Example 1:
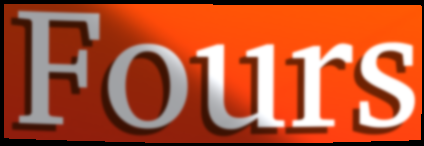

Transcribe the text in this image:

Fours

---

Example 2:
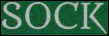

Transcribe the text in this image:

SOCK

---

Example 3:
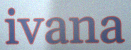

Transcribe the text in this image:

ivana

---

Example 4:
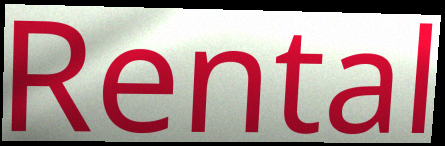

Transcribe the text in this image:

Rental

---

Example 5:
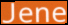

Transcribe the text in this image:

Jene